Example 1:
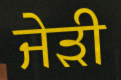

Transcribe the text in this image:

ਜੇੜੀ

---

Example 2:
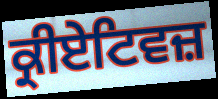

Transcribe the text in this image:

ਕ੍ਰੀਏਟਿਵਜ਼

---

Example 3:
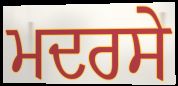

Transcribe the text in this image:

ਮਦਰਸੇ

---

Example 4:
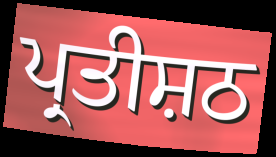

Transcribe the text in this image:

ਪ੍ਰਤੀਸ਼ਠ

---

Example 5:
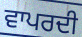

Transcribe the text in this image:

ਵਾਪਰਦੀ